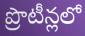
ప్రొటీన్లలో